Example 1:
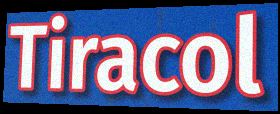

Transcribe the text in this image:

Tiracol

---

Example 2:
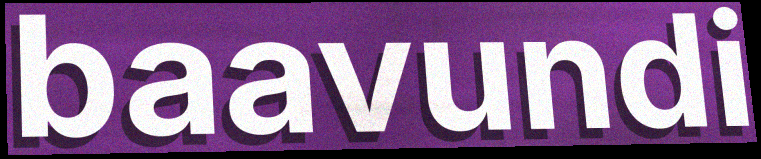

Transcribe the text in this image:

baavundi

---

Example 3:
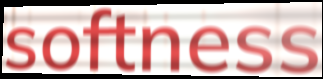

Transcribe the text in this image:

softness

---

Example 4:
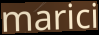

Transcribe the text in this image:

marici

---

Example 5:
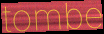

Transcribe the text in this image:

tombe